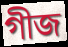
গীজ